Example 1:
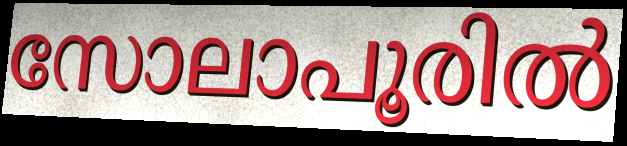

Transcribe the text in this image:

സോലാപൂരിൽ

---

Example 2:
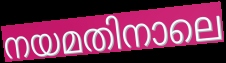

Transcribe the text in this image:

നയമതിനാലെ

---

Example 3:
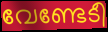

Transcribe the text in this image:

വേണ്ടേടീ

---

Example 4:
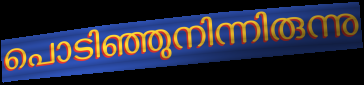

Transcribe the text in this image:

പൊടിഞ്ഞുനിന്നിരുന്നു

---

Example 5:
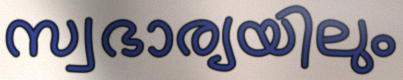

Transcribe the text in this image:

സ്വഭാര്യയിലും